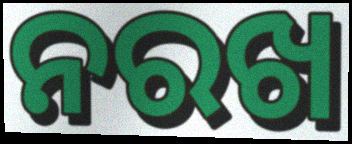
ନରଖ